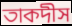
তাকদীস